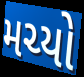
મચ્યો